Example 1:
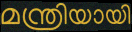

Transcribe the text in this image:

മന്ത്രിയായി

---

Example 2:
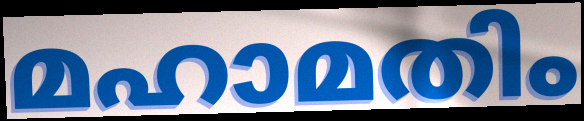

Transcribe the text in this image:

മഹാമതിം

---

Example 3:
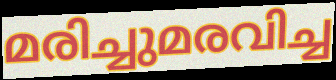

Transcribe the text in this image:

മരിച്ചുമരവിച്ച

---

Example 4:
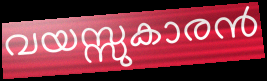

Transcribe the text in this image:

വയസ്സുകാരൻ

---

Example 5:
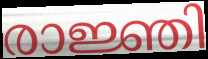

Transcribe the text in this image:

രാജ്ഞി